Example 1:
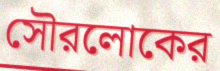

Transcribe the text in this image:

সৌরলোকের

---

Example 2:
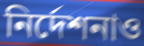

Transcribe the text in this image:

নির্দেশনাও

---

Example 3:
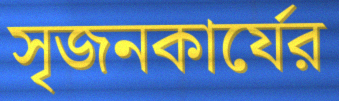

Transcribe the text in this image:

সৃজনকার্যের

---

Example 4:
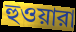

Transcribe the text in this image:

হুওয়ারা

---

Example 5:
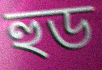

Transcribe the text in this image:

হুড